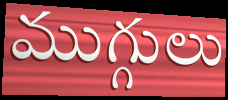
ముగ్గులు